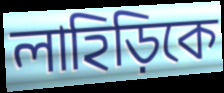
লাহিড়িকে